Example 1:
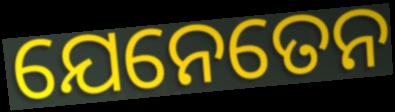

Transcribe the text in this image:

ଯେନେତେନ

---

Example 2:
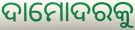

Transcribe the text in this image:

ଦାମୋଦରକୁ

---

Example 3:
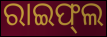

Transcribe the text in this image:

ରାଇଫ୍‌ଲ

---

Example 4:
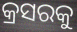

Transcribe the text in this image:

କ୍ରସରକୁ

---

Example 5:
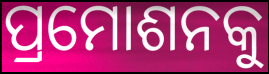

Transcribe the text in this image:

ପ୍ରମୋଶନକୁ